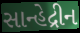
સાન્હેદ્રીન